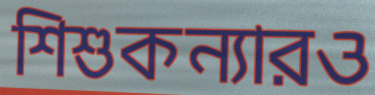
শিশুকন্যারও